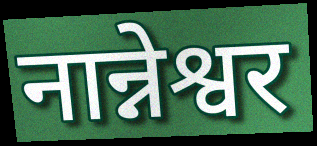
नान्नेश्वर